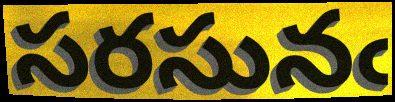
సరసునఁ